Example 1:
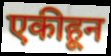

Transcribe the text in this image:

एकीहून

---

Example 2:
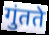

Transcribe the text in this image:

गुंतते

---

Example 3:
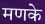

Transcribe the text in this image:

मणके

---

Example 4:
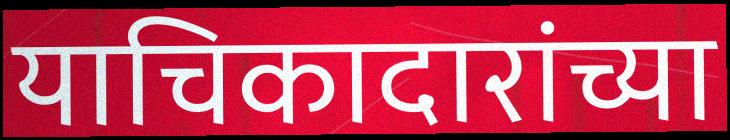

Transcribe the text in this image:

याचिकादारांच्या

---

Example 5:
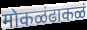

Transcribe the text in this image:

मोकळंढाकळं